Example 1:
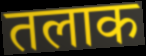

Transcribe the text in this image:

तलाक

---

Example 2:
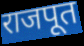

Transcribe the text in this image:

राजपूत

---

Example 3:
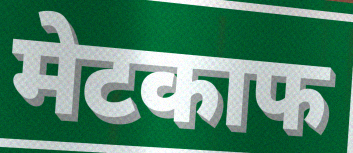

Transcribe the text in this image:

मेटकाफ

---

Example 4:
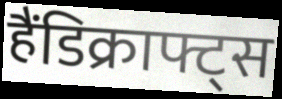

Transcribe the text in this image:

हैंडिक्राफ्ट्स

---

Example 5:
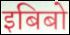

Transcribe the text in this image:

इबिबो